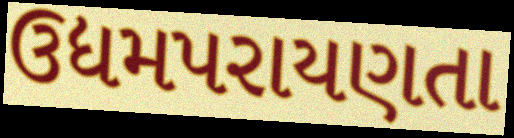
ઉદ્યમપરાયણતા